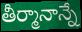
తీర్మానాన్నే